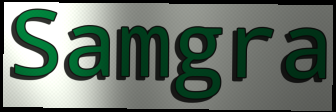
Samgra